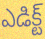
ఎడిక్ట్